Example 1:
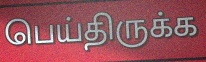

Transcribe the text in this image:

பெய்திருக்க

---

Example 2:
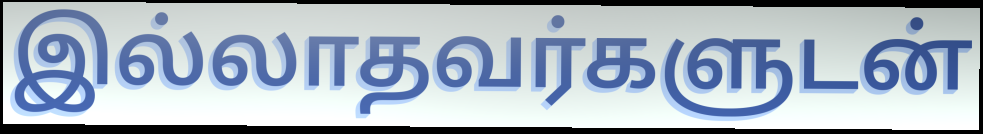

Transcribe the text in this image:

இல்லாதவர்களுடன்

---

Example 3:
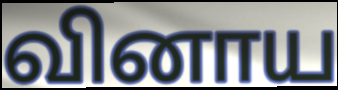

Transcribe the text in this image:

வினாய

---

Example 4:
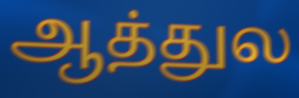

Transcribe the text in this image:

ஆத்துல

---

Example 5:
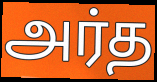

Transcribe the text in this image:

அர்த